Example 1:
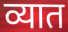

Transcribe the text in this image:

व्यात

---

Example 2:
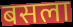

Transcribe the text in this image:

बसला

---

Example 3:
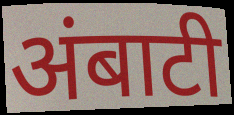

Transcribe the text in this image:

अंबाटी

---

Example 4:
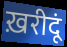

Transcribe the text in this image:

ख़रीदूं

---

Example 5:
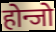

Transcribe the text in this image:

होन्जो